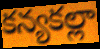
కన్యకల్లా